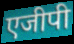
एजीपी